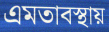
এমতাবস্থায়